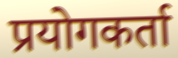
प्रयोगकर्ता